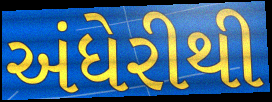
અંધેરીથી